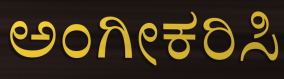
ಅಂಗೀಕರಿಸಿ